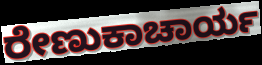
ರೇಣುಕಾಚಾರ್ಯ